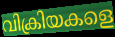
വിക്രിയകളെ